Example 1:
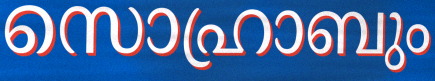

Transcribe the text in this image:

സൊഹ്രാബും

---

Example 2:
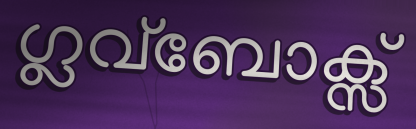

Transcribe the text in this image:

ഗ്ലവ്ബോക്സ്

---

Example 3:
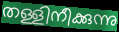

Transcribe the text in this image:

തള്ളിനീക്കുന്നു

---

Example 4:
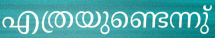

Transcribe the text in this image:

എത്രയുണ്ടെന്നു്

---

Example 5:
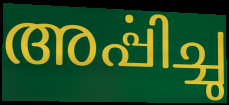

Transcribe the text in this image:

അൎപ്പിച്ചു